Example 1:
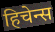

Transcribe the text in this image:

हिचेन्स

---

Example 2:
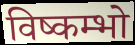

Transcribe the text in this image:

विष्कम्भो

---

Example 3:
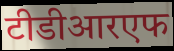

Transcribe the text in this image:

टीडीआरएफ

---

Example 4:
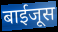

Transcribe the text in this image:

बाईजूस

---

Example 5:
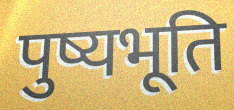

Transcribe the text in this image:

पुष्यभूति